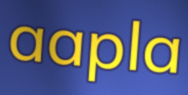
aapla